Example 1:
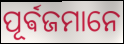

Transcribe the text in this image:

ପୂର୍ଵଜମାନେ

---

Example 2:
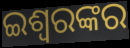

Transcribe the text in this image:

ଇଶ୍ୱରଙ୍କର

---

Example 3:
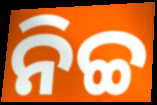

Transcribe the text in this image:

ନିଚ୍ଚ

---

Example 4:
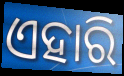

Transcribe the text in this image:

ଏହାରି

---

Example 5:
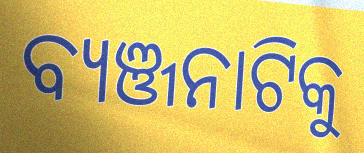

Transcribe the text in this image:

ବ୍ୟଞ୍ଜନାଟିକୁ